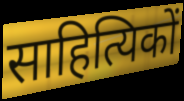
साहित्यिकों